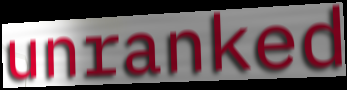
unranked